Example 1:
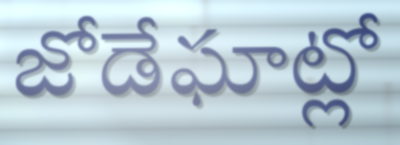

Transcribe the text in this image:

జోడేఘాట్లో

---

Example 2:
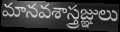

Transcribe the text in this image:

మానవశాస్త్రజ్ఞులు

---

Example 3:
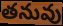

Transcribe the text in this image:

తనువు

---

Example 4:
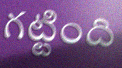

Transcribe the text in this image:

గట్టింది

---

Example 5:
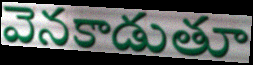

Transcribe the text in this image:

వెనకాడుతూ